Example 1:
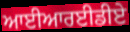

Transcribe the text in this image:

ਆਈਆਰਈਡੀਏ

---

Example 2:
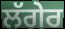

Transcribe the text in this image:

ਲੱਗੇਰ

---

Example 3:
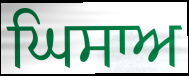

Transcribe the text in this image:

ਘਿਸਾਅ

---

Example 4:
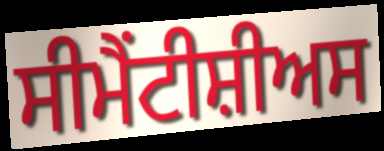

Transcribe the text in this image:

ਸੀਮੈਂਟੀਸ਼ੀਅਸ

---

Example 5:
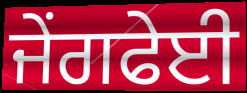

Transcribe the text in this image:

ਜੇਂਗਫੇਈ